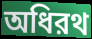
অধিরথ